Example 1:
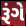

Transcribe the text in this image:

રૂંગે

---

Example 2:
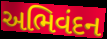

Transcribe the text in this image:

અભિવંદન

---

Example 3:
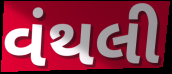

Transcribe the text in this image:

વંથલી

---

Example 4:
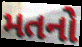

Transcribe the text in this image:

મતનો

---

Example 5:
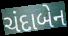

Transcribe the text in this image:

ચંદાબેન